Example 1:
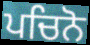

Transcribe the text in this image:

ਪਚਿਨੋ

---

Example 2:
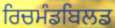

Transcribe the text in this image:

ਰਿਚਮੰਡਬਿਲਡ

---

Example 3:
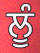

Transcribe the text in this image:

ਲੂੰ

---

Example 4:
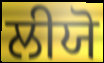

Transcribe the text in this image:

ਲੀਯੋ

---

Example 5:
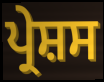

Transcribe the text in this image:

ਪ੍ਰੇਸ਼ਸ